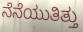
ನೆನೆಯುತಿತ್ತು